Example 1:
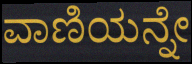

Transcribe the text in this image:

ವಾಣಿಯನ್ನೇ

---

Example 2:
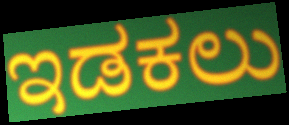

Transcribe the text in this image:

ಇಡಕಲು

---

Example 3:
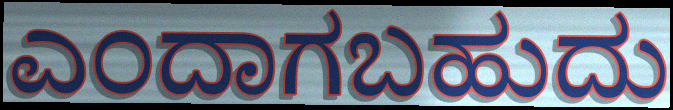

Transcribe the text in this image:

ಎಂದಾಗಬಹುದು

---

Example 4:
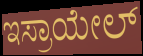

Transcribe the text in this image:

ಇಸ್ರಾಯೇಲ್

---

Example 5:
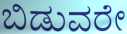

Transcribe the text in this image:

ಬಿಡುವರೇ